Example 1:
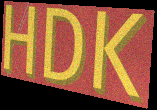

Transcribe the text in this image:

HDK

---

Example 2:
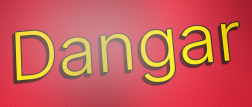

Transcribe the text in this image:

Dangar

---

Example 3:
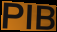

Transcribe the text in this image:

PIB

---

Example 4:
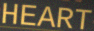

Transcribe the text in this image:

HEART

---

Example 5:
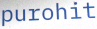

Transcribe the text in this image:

purohit